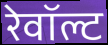
रेवॉल्ट